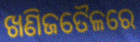
ଖଣିଜତୈଳରେ